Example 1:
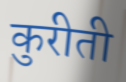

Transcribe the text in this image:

कुरीती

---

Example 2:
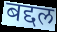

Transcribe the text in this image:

बद्दल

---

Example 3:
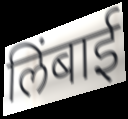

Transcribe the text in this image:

लिंबाई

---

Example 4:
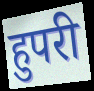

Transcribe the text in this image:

हुपरी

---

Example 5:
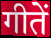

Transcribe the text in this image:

गीतें